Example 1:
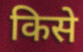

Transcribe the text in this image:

किसे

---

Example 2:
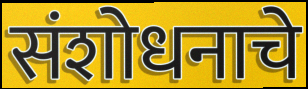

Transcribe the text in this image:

संशोधनाचे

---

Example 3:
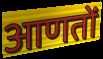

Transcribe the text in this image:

आणतों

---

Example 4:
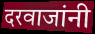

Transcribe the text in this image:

दरवाजांनी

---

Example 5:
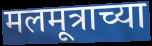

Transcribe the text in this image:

मलमूत्राच्या